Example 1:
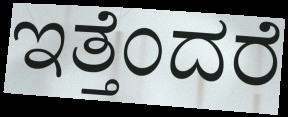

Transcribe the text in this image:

ಇತ್ತೆಂದರೆ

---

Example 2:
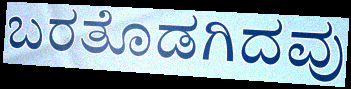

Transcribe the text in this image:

ಬರತೊಡಗಿದವು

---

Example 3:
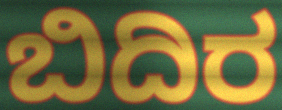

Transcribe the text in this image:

ಬಿದಿರ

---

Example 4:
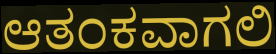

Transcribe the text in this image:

ಆತಂಕವಾಗಲಿ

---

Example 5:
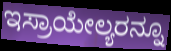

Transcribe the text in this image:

ಇಸ್ರಾಯೇಲ್ಯರನ್ನೂ